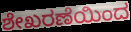
ಶೇಖರಣೆಯಿಂದ